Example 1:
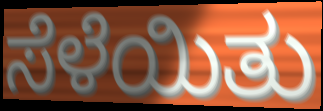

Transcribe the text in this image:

ಸೆಳೆಯಿತು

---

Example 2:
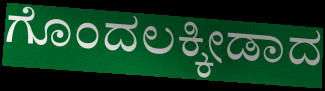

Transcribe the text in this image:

ಗೊಂದಲಕ್ಕೀಡಾದ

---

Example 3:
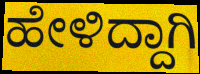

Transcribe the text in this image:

ಹೇಳಿದ್ದಾಗಿ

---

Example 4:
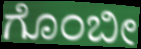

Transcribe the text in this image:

ಗೊಂಬೀ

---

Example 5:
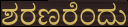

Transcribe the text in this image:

ಶರಣರೆಂದು